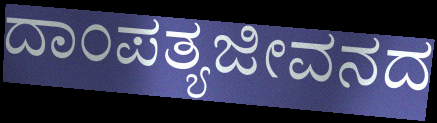
ದಾಂಪತ್ಯಜೀವನದ